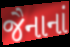
જૈનાનાં